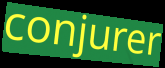
conjurer